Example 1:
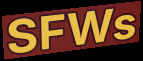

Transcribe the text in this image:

SFWs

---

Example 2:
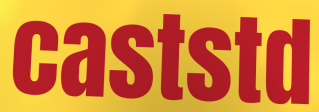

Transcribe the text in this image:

caststd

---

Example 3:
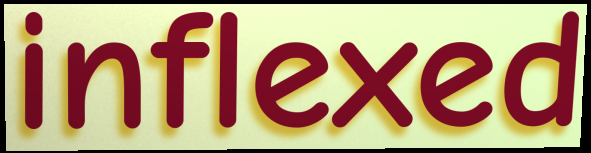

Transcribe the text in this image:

inflexed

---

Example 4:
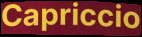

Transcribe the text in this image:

Capriccio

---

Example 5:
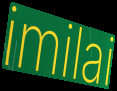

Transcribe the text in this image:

imilai